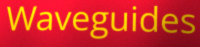
Waveguides